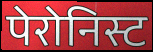
पेरोनिस्ट